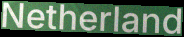
Netherland